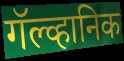
गॅल्व्हानिक